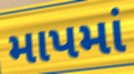
માપમાં